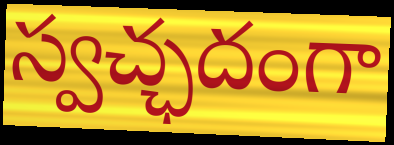
స్వచ్ఛదంగా